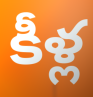
కీళ్ల